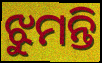
ଝୁମନ୍ତି